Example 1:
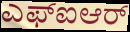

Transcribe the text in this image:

ಎಫ್ಐಆರ್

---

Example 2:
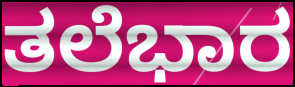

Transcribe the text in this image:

ತಲೆಭಾರ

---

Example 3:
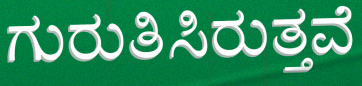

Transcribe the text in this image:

ಗುರುತಿಸಿರುತ್ತವೆ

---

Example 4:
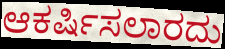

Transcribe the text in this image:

ಆಕರ್ಷಿಸಲಾರದು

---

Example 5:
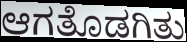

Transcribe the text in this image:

ಆಗತೊಡಗಿತು